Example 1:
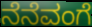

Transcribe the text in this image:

ನೆನೆವಂಗೆ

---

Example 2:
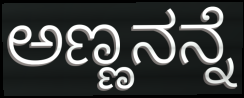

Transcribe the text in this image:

ಅಣ್ಣನನ್ನೆ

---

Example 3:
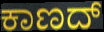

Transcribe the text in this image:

ಕಾಣದ್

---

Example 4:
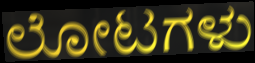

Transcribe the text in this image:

ಲೋಟಗಳು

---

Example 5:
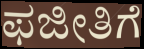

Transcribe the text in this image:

ಫಜೀತಿಗೆ